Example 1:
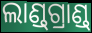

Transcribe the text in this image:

ଲାଣ୍ଡ୍‍ଗ୍ରାଣ୍ଡ୍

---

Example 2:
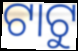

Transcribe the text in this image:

ଟାଟୁ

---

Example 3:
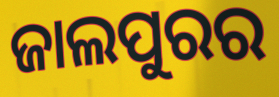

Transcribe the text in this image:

ଜାଲପୁରର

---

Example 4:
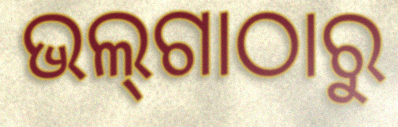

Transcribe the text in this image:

ଭଲ୍‌ଗାଠାରୁ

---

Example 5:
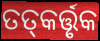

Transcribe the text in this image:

ତତ୍‌କର୍ତ୍ତୃକ